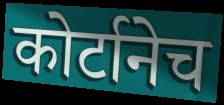
कोर्टानेच